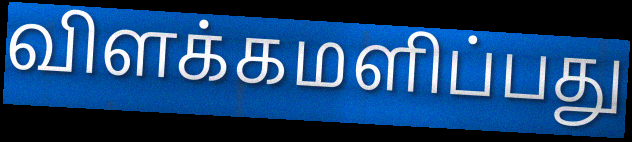
விளக்கமளிப்பது